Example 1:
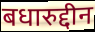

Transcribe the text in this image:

बधारुद्दीन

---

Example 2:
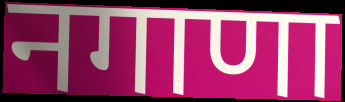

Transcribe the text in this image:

नगाणा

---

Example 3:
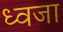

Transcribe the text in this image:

ध्वजा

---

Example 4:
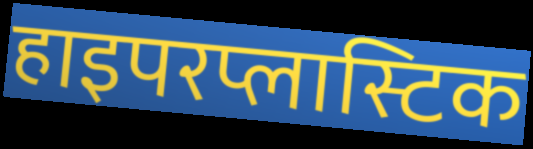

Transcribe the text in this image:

हाइपरप्लास्टिक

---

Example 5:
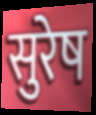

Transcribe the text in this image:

सुरेष